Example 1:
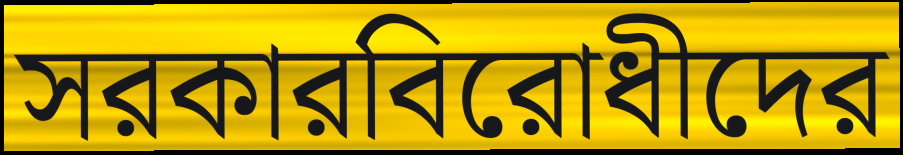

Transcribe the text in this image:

সরকারবিরোধীদের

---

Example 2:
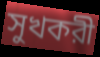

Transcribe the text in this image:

সুখকরী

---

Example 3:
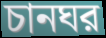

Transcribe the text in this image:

চানঘর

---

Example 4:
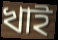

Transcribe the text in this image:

খাই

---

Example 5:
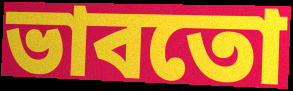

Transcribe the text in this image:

ভাবতো